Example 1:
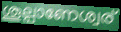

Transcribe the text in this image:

ശൂല്പാണേശ്വര്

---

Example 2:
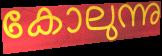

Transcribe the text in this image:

കോലുന്നു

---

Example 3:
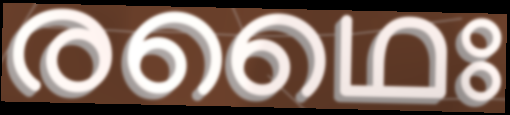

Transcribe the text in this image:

രഥൈഃ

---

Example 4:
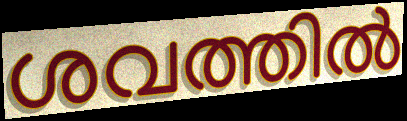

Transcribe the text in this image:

ശവത്തിൽ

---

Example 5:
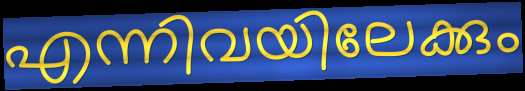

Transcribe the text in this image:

എന്നിവയിലേക്കും